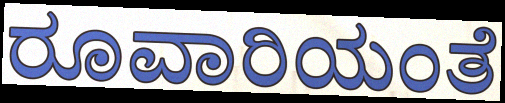
ರೂವಾರಿಯಂತೆ